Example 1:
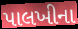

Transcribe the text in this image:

પાલખીના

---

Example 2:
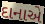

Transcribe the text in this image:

દાનાએ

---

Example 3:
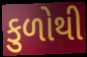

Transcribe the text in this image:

કુળોથી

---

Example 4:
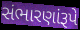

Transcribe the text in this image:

સંભારણાંરૂપે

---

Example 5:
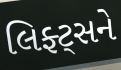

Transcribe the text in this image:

લિફ્ટ્સને